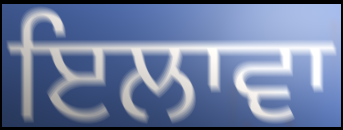
ਇਲਾਵਾ